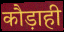
कौड़ाही